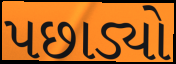
પછાડ્યો